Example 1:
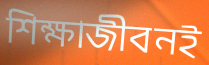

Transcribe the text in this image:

শিক্ষাজীবনই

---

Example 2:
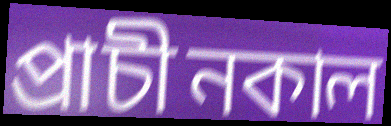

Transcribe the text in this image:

প্রাচীনকাল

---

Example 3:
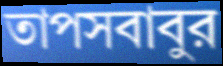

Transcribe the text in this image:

তাপসবাবুর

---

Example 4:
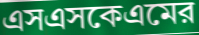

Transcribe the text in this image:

এসএসকেএমের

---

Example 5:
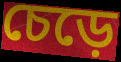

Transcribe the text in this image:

চেড়ে